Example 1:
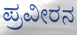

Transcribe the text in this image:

ಪ್ರವೀರನ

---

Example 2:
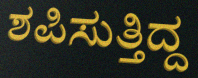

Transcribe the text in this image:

ಶಪಿಸುತ್ತಿದ್ದ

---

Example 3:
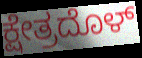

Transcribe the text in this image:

ಕ್ಷೇತ್ರದೊಳ್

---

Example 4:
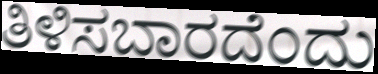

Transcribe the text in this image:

ತಿಳಿಸಬಾರದೆಂದು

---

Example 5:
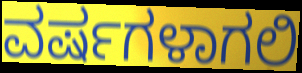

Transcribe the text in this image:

ವರ್ಷಗಳಾಗಲಿ